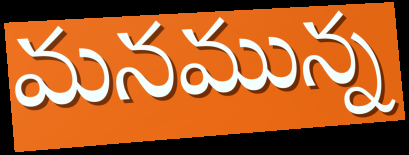
మనమున్న